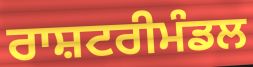
ਰਾਸ਼ਟਰੀਮੰਡਲ